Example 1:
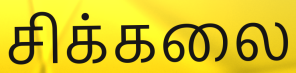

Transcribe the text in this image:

சிக்கலை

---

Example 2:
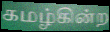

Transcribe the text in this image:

கமழ்கின்ற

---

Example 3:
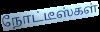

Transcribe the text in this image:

நோட்டீஸ்கள்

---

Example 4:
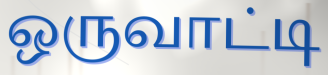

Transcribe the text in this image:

ஒருவாட்டி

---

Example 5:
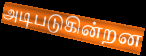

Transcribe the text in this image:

அடிபடுகின்றன